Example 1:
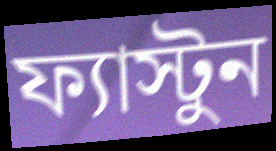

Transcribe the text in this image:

ফ্যাস্টুন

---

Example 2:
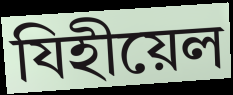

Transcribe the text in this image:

যিহীয়েল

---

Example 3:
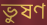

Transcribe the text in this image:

ভুষণ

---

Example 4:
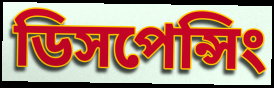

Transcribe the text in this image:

ডিসপেন্সিং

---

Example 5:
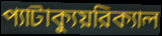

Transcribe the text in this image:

প্যাটাক্যুয়রিক্যাল